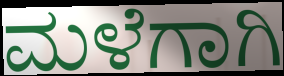
ಮಳೆಗಾಗಿ